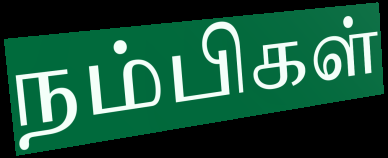
நம்பிகள்